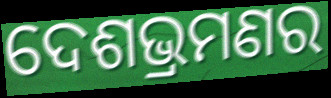
ଦେଶଭ୍ରମଣର